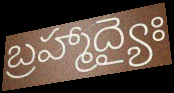
బ్రహ్మాద్యైః